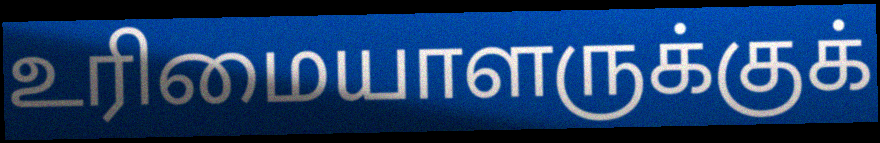
உரிமையாளருக்குக்